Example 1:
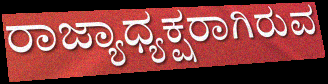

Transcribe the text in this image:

ರಾಜ್ಯಾಧ್ಯಕ್ಷರಾಗಿರುವ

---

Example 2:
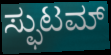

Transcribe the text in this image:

ಸ್ಫುಟಮ್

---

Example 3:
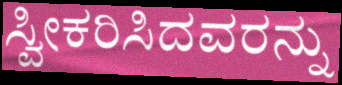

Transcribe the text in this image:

ಸ್ವೀಕರಿಸಿದವರನ್ನು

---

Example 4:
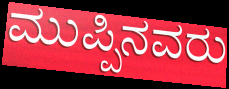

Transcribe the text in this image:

ಮುಪ್ಪಿನವರು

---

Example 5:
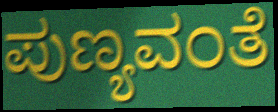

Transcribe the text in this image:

ಪುಣ್ಯವಂತೆ